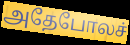
அதேபோலச்